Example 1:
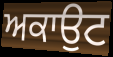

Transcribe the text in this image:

ਅਕਾਉਟ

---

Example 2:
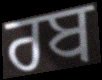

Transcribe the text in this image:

ਰਬ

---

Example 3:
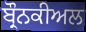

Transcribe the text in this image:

ਬ੍ਰੌਨਕੀਅਲ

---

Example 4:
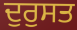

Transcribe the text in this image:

ਦੁਰੁਸਤ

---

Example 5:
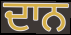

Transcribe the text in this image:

ਦਾਨ